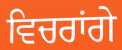
ਵਿਚਰਾਂਗੇ